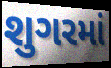
શુગરમાં